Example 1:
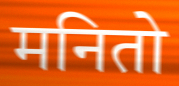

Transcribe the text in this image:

मनितो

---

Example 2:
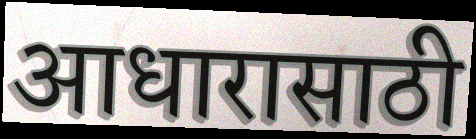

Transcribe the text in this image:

आधारासाठी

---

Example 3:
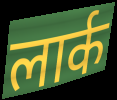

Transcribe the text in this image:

लार्क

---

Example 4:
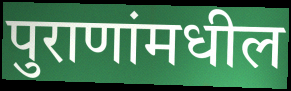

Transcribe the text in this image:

पुराणांमधील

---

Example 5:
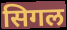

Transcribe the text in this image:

सिगल